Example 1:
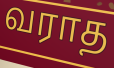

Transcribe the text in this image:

வராத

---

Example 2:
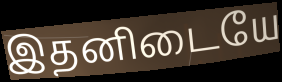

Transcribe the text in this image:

இதனிடையே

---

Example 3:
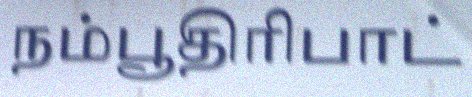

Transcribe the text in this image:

நம்பூதிரிபாட்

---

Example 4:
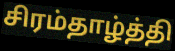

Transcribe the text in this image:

சிரம்தாழ்த்தி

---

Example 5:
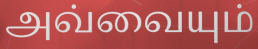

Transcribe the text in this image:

அவ்வையும்